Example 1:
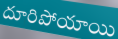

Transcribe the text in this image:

దూరిపోయాయి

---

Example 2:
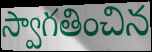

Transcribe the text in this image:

స్వాగతించిన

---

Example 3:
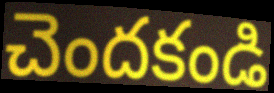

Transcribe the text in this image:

చెందకండి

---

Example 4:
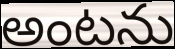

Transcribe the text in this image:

అంటను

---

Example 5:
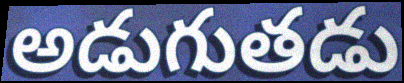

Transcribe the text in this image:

అడుగుతడు